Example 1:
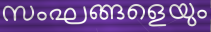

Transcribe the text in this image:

സംഘങ്ങളെയും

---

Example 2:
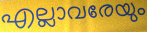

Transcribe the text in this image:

എല്ലാവരേയും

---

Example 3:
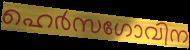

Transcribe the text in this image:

ഹെർസഗോവിന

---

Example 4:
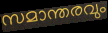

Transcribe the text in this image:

സമാന്തരവും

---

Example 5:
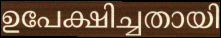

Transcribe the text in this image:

ഉപേക്ഷിച്ചതായി